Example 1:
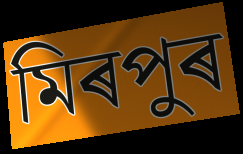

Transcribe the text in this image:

মিৰপুৰ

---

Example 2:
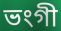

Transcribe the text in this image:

ভংগী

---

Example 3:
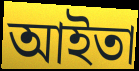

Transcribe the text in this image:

আইতা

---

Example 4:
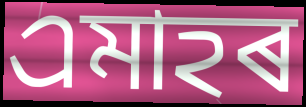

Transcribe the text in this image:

এমাহৰ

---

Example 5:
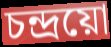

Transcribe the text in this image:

চন্দ্ৰয়ো